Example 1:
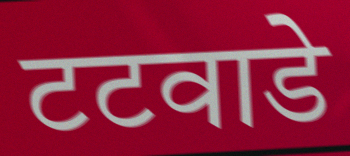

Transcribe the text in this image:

टटवाडे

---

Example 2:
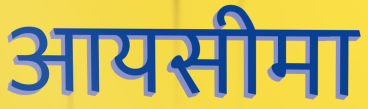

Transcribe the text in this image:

आयसीमा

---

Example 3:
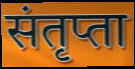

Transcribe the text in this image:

संतृप्ता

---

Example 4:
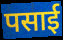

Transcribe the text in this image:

पसाई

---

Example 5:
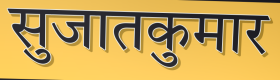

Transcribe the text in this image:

सुजातकुमार